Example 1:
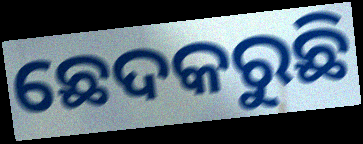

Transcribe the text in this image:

ଛେଦକରୁଛି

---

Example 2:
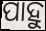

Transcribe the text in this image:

ପାହୁ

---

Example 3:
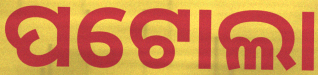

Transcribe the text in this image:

ପଟୋଲା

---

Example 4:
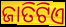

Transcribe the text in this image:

ଜାତିଟିଏ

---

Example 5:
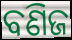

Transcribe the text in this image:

ବଣିଜ